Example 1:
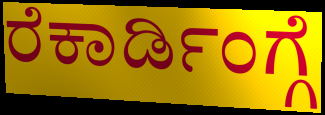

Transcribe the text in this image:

ರೆಕಾರ್ಡಿಂಗ್ಗೆ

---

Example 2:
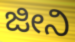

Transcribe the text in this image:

ಜೀನಿ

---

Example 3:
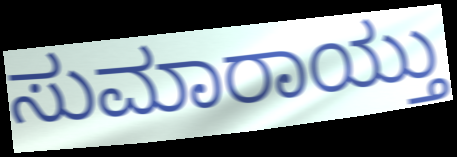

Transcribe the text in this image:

ಸುಮಾರಾಯ್ತು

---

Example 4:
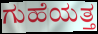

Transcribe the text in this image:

ಗುಹೆಯತ್ತ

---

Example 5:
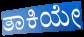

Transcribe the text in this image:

ತಾಕಿಯೇ